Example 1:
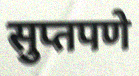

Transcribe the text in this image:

सुप्तपणे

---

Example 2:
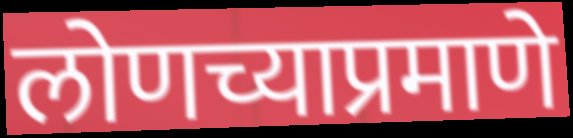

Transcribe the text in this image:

लोणच्याप्रमाणे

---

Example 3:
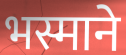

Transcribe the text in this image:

भस्माने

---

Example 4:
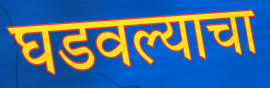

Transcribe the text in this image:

घडवल्याचा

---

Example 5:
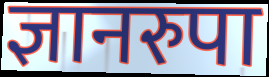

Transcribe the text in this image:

ज्ञानरुपा